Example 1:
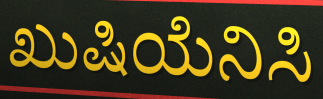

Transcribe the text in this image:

ಖುಷಿಯೆನಿಸಿ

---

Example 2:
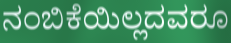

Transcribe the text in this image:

ನಂಬಿಕೆಯಿಲ್ಲದವರೂ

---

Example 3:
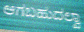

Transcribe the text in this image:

ಆಗಬಹುದಲ್ವಾ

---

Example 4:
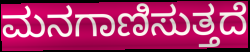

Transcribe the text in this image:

ಮನಗಾಣಿಸುತ್ತದೆ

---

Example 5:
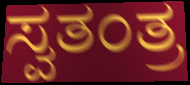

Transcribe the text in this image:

ಸ್ವತಂತ್ರ